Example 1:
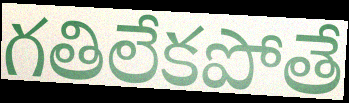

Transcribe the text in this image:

గతిలేకపోతే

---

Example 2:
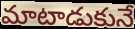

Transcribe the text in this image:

మాటాడుకునే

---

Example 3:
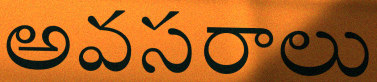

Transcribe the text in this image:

అవసరాలు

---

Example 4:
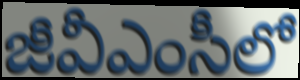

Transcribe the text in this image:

జీవీఎంసీలో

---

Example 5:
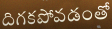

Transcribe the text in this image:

దిగకపోవడంతో